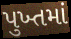
પુખ્તમાં